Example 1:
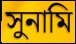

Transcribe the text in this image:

সুনামি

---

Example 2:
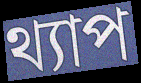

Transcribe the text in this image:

থ্যাপ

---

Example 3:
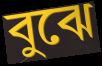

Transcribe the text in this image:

বুঝে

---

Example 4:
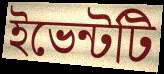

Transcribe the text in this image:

ইভেন্টটি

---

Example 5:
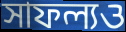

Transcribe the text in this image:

সাফল্যও